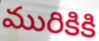
మురికికి